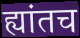
ह्यांतच